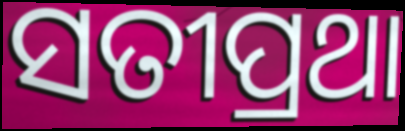
ସତୀପ୍ରଥା